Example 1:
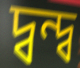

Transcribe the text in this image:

দ্বন্দ্ব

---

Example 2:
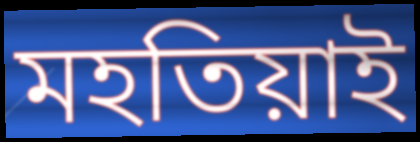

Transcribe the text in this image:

মহতিয়াই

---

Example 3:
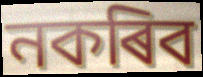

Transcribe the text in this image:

নকৰিব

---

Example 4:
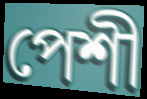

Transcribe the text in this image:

পেশী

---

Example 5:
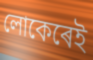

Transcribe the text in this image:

লোকেৰেই